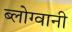
ब्लोग्वानी